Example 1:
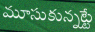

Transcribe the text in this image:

మూసుకున్నట్టే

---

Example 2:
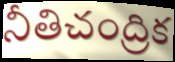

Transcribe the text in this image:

నీతిచంద్రిక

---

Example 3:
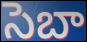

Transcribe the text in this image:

సెబా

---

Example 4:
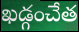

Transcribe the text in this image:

ఖడ్గంచేత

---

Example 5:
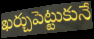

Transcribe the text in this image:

ఖర్చుపెట్టుకునే